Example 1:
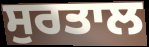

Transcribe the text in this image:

ਸੁਰਤਾਲ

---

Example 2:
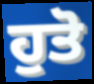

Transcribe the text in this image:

ਹੁਤੋ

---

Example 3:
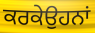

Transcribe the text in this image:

ਕਰਕੇਉਹਨਾਂ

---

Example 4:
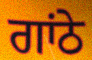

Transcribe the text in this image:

ਗਾਂਠੇ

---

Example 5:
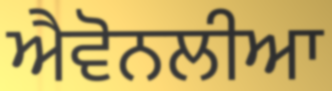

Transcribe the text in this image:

ਐਵੋਨਲੀਆ